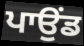
ਪਾਉਂਡ